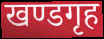
खण्डगृह